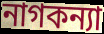
নাগকন্যা